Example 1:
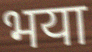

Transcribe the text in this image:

भया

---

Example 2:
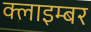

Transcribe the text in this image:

क्लाइम्बर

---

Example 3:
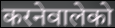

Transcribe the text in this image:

करनेवालेको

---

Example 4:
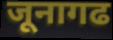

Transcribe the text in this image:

जूनागढ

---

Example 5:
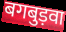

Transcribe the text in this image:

बगबुड़वा